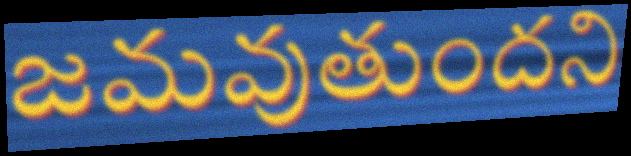
జమవుతుందని